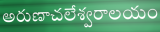
అరుణాచలేశ్వరాలయం